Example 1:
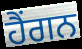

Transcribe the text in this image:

ਹੈਂਗਨ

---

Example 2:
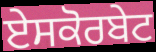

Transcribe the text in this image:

ਏਸਕੋਰਬੇਟ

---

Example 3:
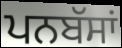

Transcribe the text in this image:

ਪਨਬੱਸਾਂ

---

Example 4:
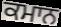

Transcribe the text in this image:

ਕਮਾਨ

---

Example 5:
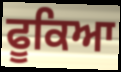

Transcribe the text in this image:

ਫੂਕਿਆ